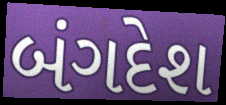
બંગદેશ